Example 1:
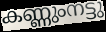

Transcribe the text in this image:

കണ്ണുംനട്ടു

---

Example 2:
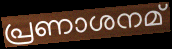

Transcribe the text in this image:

പ്രണാശനമ്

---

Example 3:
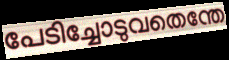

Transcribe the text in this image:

പേടിച്ചോടുവതെന്തേ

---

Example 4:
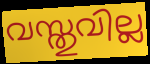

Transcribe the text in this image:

വസ്തുവില്ല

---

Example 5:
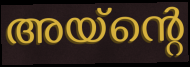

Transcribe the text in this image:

അയ്ന്റെ